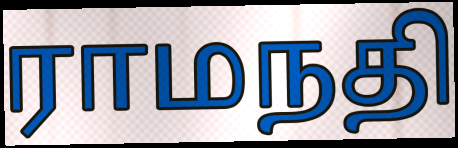
ராமநதி